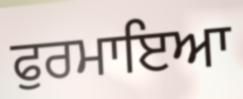
ਫੁਰਮਾਇਆ